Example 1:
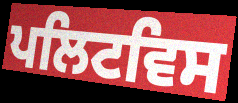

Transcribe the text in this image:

ਪਲਿਟਵਿਸ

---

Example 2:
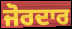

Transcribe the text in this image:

ਜੋਰਦਾਰ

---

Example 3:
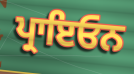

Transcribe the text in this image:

ਪ੍ਰਾਇਓਨ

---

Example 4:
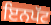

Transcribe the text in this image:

ਇਨਪੱਟ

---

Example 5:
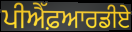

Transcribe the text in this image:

ਪੀਐੱਫ਼ਆਰਡੀਏ